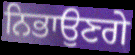
ਨਿਭਾਉਣਗੇ